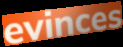
evinces